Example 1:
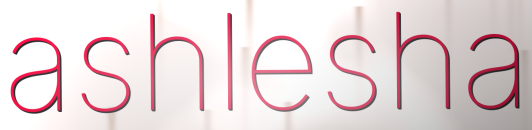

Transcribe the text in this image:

ashlesha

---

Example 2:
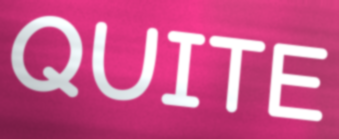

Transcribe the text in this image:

QUITE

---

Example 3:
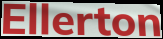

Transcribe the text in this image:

Ellerton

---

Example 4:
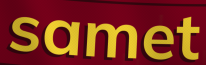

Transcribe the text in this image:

samet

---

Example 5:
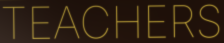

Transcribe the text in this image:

TEACHERS